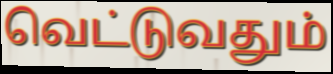
வெட்டுவதும்